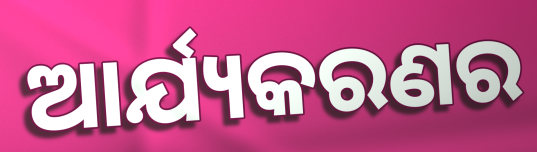
ଆର୍ଯ୍ୟକରଣର